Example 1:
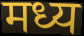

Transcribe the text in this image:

मध्य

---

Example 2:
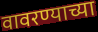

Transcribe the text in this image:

वावरण्याच्या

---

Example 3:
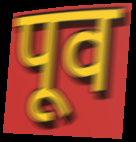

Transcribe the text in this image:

पूव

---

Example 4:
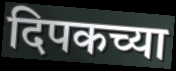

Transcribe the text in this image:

दिपकच्या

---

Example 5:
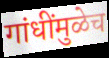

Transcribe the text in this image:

गांधींमुळेच